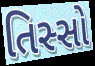
તિસ્સો